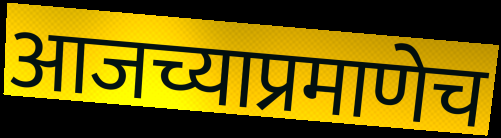
आजच्याप्रमाणेच